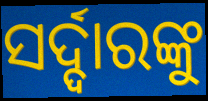
ସର୍ଦ୍ଦାରଙ୍କୁ